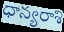
ధాన్యరాశి